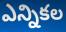
ఎన్నికల